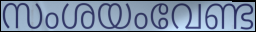
സംശയംവേണ്ട